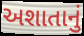
અશાતાનું